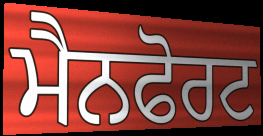
ਮੈਨਫੋਰਟ